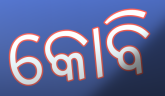
କୋବି